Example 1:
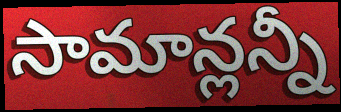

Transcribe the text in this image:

సామాన్లన్నీ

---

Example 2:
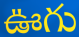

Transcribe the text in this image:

ఊగు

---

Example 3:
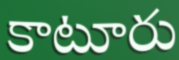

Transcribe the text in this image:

కాటూరు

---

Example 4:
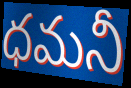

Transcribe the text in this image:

ధమనీ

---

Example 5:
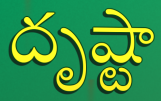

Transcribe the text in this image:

దృష్టా